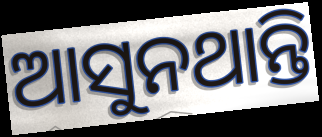
ଆସୁନଥାନ୍ତି